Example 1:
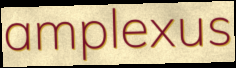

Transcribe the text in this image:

amplexus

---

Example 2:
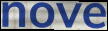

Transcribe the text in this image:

nove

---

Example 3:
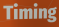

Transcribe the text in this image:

Timing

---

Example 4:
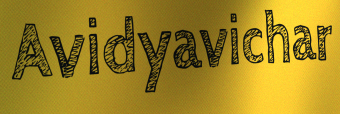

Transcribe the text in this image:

Avidyavichar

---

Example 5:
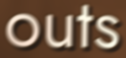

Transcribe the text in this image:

outs